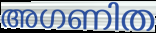
അഗണിത